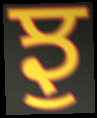
ਝੁ